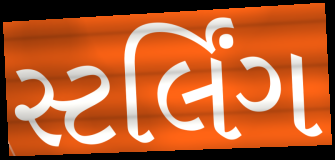
સ્ટર્લિંગ